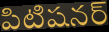
పిటిషనర్